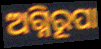
ଅଗ୍ନିରୂପା